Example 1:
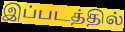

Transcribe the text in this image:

இப்படத்தில்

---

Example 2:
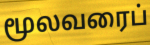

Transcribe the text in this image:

மூலவரைப்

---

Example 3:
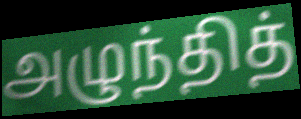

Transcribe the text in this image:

அழுந்தித்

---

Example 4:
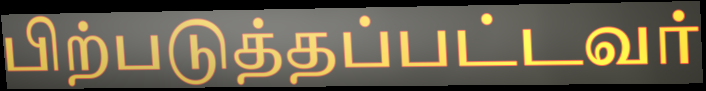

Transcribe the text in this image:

பிற்படுத்தப்பட்டவர்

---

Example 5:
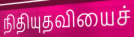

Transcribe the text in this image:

நிதியுதவியைச்